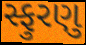
સ્ફુરણુ